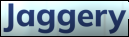
Jaggery